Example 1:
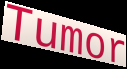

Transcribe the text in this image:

Tumor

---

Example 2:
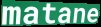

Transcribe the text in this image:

matane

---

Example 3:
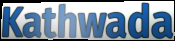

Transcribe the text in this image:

Kathwada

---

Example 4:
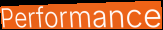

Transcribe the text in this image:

Performance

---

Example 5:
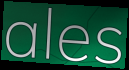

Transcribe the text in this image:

ales